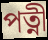
পত্নী